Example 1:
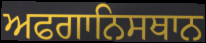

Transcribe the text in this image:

ਅਫਗਾਨਿਸਥਾਨ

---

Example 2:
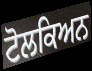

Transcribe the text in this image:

ਟੋਲਕਿਅਨ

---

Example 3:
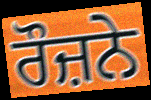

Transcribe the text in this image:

ਰੌਜ਼ਨੇ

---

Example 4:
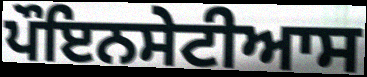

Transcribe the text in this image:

ਪੌਇਨਸੇਟੀਆਸ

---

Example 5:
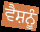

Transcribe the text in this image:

ਵੈਸ਼ਨੂੰ